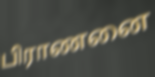
பிராணனை